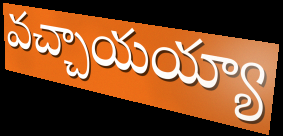
వచ్చాయయ్యా